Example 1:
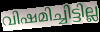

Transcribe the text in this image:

വിഷമിച്ചിട്ടില്ല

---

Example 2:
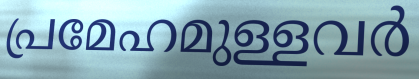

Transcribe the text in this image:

പ്രമേഹമുള്ളവർ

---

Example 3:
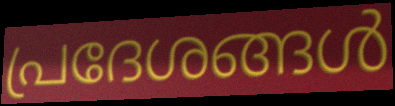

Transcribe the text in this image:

പ്രദേശങ്ങൾ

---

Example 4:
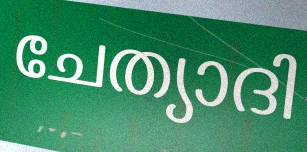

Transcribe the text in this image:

ചേത്യാദി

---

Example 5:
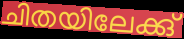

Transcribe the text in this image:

ചിതയിലേക്കു്